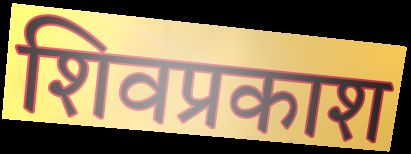
शिवप्रकाश